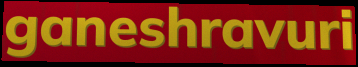
ganeshravuri